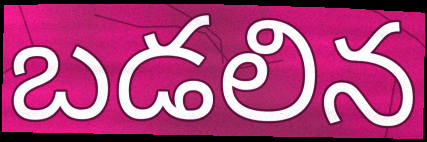
బడలిన